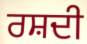
ਰਸ਼ਦੀ